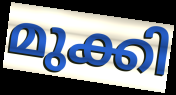
മുക്കി